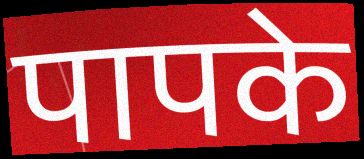
पापके